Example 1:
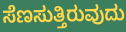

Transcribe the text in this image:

ಸೆಣಸುತ್ತಿರುವುದು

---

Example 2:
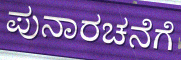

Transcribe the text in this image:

ಪುನಾರಚನೆಗೆ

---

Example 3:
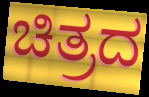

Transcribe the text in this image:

ಚಿತ್ರದ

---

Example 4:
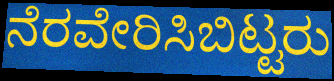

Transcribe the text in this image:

ನೆರವೇರಿಸಿಬಿಟ್ಟರು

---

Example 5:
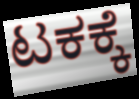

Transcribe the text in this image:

ಟಕಕ್ಕೆ